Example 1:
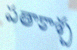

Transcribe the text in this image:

పతాకాశ్చ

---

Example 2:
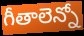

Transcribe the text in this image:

గీతాలెన్నో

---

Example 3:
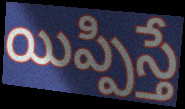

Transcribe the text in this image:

యిప్పిస్తే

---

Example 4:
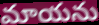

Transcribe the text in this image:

మాయను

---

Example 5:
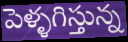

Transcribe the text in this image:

పెళ్ళగిస్తున్న